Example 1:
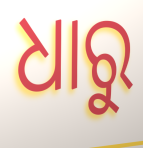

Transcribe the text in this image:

ଧାରୁ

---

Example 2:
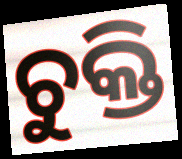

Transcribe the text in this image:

ଚୁକ୍ତି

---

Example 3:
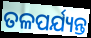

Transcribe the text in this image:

ତଳପର୍ଯ୍ୟନ୍ତ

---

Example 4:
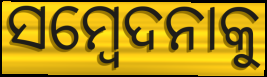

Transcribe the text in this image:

ସମ୍ବେଦନାକୁ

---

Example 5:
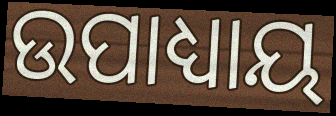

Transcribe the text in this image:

ଉପାଧ୍ୟାୟ